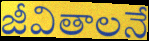
జీవితాలనే